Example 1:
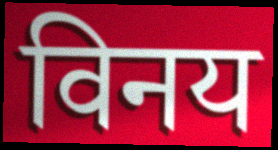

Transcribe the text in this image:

विनय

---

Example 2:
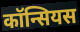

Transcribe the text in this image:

कॉन्सियस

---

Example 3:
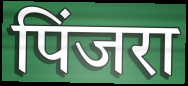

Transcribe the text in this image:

पिंजरा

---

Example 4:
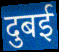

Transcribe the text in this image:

दुबई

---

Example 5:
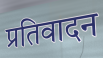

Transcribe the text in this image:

प्रतिवादन